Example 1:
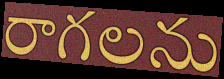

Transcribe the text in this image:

రాగలను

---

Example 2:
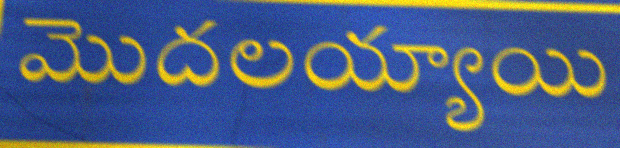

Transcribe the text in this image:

మొదలయ్యాయి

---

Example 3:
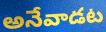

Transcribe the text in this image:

అనేవాడట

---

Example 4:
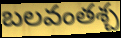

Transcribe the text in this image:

బలవంతశ్చ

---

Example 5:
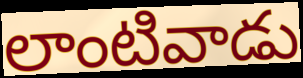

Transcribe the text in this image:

లాంటివాడు